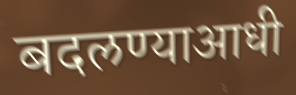
बदलण्याआधी